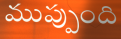
ముప్పుంది